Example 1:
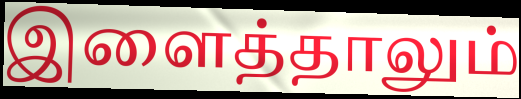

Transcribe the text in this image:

இளைத்தாலும்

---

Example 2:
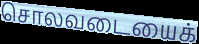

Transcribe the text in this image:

சொலவடையைக்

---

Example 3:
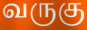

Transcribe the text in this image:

வருகு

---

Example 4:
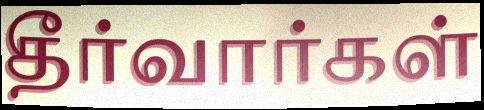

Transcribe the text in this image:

தீர்வார்கள்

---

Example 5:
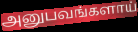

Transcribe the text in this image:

அனுபவங்களாய்